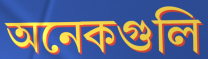
অনেকগুলি